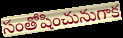
సంతోషించునుగాక